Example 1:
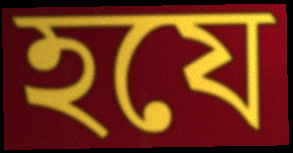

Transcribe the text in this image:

হযে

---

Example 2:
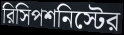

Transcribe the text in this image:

রিসিপশনিস্টের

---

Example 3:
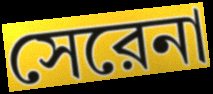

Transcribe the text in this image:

সেরেনা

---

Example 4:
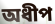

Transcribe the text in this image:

অধীপ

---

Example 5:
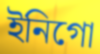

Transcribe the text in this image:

ইনিগো